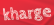
kharge